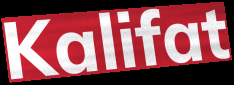
Kalifat